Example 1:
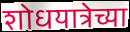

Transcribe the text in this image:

शोधयात्रेच्या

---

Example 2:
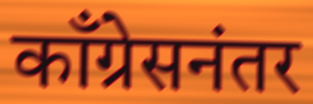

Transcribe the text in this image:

काँग्रेसनंतर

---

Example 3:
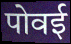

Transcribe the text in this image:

पोवई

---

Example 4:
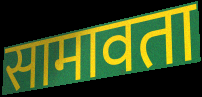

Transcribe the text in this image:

सामावता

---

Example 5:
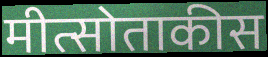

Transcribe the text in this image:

मीत्सोताकीस